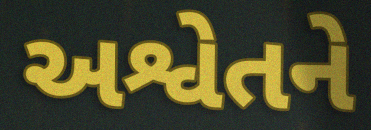
અશ્વેતને